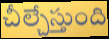
చీల్చేస్తుంది